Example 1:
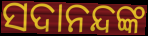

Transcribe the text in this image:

ସଦାନନ୍ଦଙ୍କ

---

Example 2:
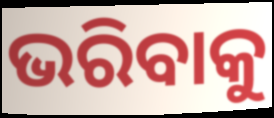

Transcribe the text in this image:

ଭରିବାକୁ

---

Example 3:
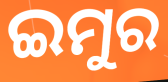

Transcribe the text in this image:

ଇମୁର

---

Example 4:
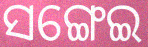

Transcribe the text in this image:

ସଙ୍ଗେଇ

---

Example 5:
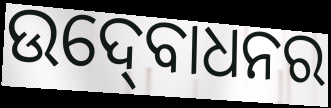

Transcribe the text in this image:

ଉଦ୍‍ବୋଧନର